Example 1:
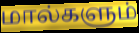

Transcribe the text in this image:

மால்களும்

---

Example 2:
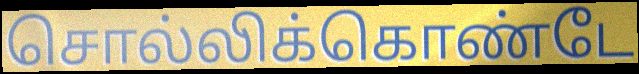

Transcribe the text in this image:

சொல்லிக்கொண்டே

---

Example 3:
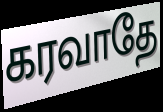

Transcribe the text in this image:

கரவாதே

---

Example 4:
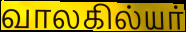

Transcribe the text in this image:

வாலகில்யர்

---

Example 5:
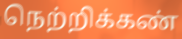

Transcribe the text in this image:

நெற்றிக்கண்